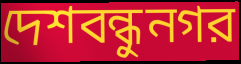
দেশবন্ধুনগর